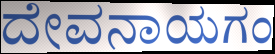
ದೇವನಾಯಗಂ